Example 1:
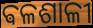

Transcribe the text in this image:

ଵଳଶାଳୀ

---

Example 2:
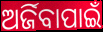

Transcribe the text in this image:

ଅର୍ଜିବାପାଇଁ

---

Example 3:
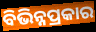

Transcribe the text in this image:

ବିଭିନ୍ନପ୍ରକାର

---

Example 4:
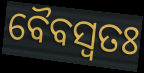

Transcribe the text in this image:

ବୈବସ୍ଵତଃ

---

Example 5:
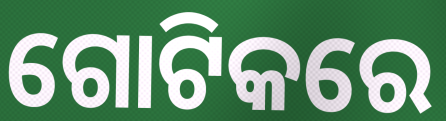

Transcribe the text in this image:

ଗୋଟିକରେ